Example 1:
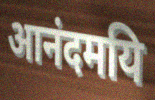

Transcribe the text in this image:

आनंदमयि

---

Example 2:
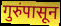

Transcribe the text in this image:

गुरुंपासून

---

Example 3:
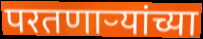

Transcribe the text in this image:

परतणाऱ्यांच्या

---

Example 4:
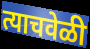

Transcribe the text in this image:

त्याचवेळी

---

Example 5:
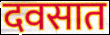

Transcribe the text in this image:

दवसात